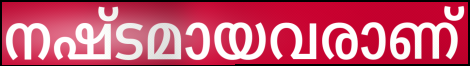
നഷ്ടമായവരാണ്